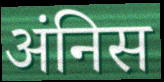
अंनिस